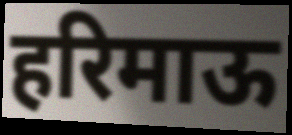
हरिमाऊ